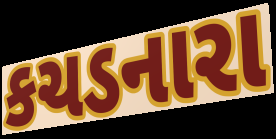
કચડનારા